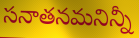
సనాతనమనిన్నీ